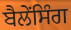
ਬੈਲੇਂਸਿੰਗ